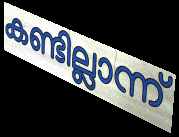
കണ്ടില്ലാന്ന്